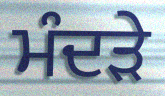
ਮੰਦੜੇ